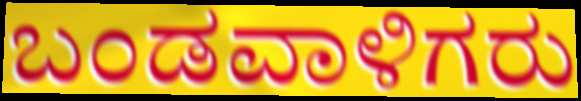
ಬಂಡವಾಳಿಗರು